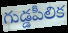
గుడ్డపీలిక